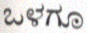
ಒಳಗೂ